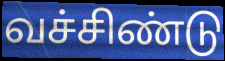
வச்சிண்டு